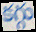
కగ్గు